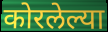
कोरलेल्या